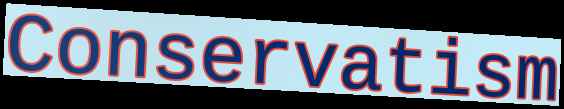
Conservatism